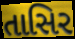
તાસિર